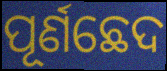
ପୂର୍ଣଛେଦ